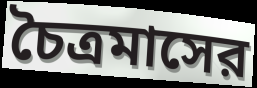
চৈত্রমাসের